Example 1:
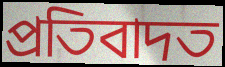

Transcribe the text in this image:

প্ৰতিবাদত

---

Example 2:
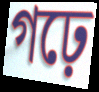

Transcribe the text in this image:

গঢ়ে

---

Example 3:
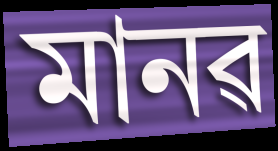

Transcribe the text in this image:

মানৱ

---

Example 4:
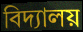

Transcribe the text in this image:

বিদ্যালয়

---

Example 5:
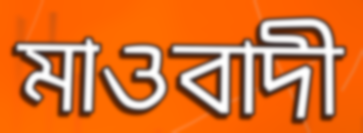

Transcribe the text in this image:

মাওবাদী